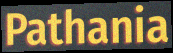
Pathania